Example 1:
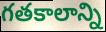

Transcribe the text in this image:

గతకాలాన్ని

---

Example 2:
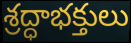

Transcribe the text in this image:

శ్రద్ధాభక్తులు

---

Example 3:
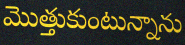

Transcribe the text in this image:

మొత్తుకుంటున్నాను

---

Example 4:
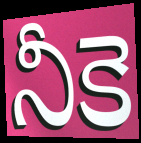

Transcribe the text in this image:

నీకె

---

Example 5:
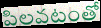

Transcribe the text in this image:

పిలవటంతో